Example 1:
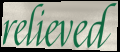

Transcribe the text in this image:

relieved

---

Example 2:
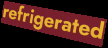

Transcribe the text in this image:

refrigerated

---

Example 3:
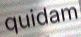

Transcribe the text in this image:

quidam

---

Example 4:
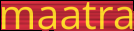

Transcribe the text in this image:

maatra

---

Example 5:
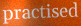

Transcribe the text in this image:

practised